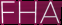
FHA